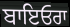
ਬਾਇਓਰਾ